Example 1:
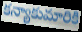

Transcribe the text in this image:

కన్యాకుమారికి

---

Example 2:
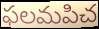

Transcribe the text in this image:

ఫలమపిచ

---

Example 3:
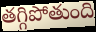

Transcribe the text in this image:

తగ్గిపోతుంది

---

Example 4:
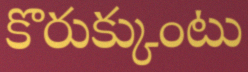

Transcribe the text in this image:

కొరుక్కుంటు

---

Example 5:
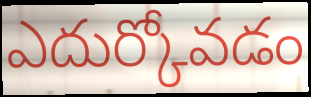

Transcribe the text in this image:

ఎదుర్కోవడం